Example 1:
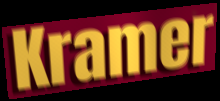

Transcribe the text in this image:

Kramer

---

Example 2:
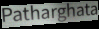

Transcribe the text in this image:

Patharghata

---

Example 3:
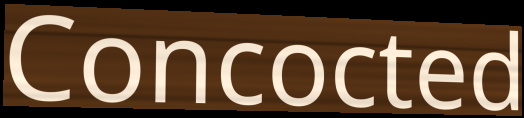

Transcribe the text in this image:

Concocted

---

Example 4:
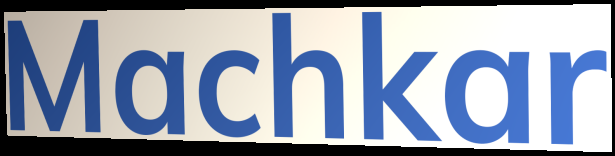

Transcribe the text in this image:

Machkar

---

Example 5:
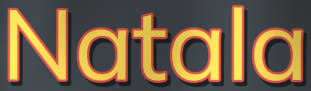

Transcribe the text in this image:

Natala